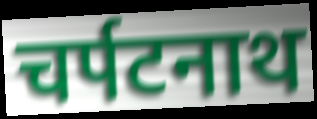
चर्पटनाथ